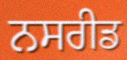
ਨਸਰੀਡ